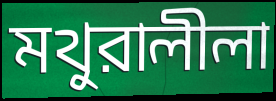
মথুরালীলা